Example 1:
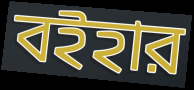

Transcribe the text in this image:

বইহার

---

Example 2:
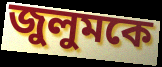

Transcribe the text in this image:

জুলুমকে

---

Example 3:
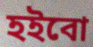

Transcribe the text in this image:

হইবো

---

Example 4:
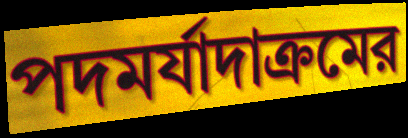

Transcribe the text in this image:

পদমর্যাদাক্রমের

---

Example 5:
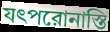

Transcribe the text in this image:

যৎপরোনাস্তি